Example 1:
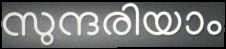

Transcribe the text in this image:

സുന്ദരിയാം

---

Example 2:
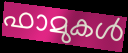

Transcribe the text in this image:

ഫാമുകൾ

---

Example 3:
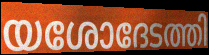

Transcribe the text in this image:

യശോദേടത്തി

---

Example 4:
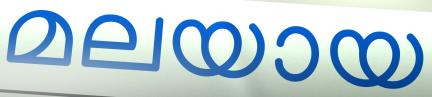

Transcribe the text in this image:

മലയായ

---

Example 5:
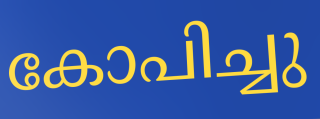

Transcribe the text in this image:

കോപിച്ചു